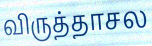
விருத்தாசல